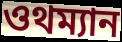
ওথম্যান